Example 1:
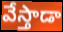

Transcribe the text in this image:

వేస్తాడా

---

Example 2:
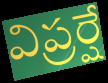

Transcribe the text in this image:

విప్రర్షే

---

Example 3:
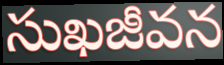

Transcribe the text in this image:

సుఖజీవన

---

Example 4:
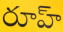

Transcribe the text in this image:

రూహ్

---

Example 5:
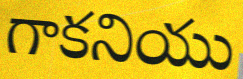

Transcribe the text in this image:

గాకనియు